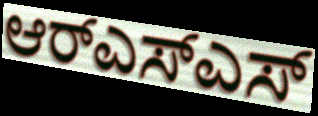
ಆರ್‌ಎಸ್ಎಸ್